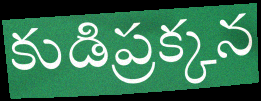
కుడిప్రక్కన